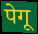
पेगू